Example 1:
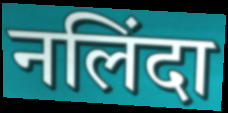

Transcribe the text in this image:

नलिंदा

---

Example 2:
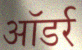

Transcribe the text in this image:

ऑडर्र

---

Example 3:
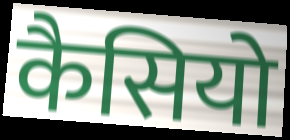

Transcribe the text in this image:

कैसियो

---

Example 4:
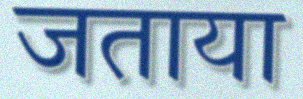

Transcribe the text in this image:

जताया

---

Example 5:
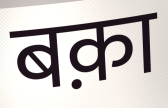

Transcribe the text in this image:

बक़ा